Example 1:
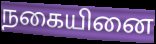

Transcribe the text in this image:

நகையினை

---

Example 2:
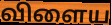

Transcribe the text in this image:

விளைய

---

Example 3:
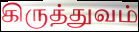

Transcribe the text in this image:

கிருத்துவம்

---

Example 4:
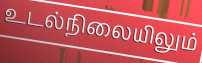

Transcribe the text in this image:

உடல்நிலையிலும்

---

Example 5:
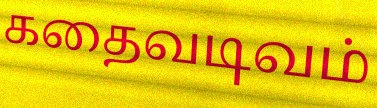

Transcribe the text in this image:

கதைவடிவம்